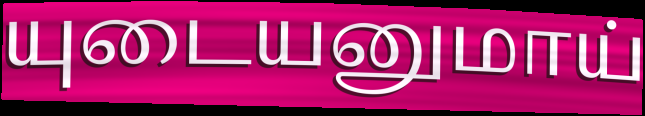
யுடையனுமாய்